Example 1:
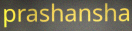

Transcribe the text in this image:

prashansha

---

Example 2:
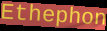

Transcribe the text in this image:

Ethephon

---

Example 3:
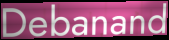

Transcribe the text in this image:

Debanand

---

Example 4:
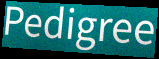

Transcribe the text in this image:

Pedigree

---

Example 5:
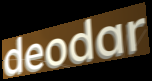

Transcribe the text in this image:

deodar